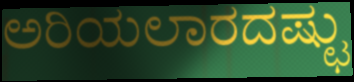
ಅರಿಯಲಾರದಷ್ಟು